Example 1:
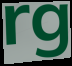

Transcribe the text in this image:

rg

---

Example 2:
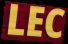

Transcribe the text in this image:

LEC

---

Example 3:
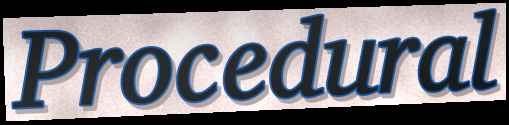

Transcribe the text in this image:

Procedural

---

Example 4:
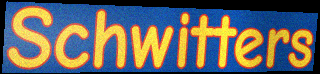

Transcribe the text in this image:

Schwitters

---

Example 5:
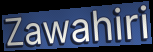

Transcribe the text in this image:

Zawahiri